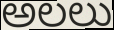
అలలు